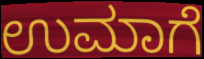
ಉಮಾಗೆ